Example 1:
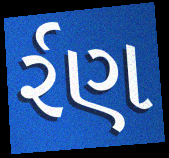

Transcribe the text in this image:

ર્રણ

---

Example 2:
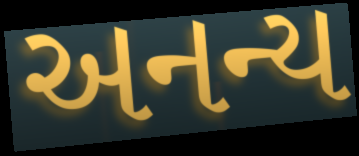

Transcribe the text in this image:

અનન્ય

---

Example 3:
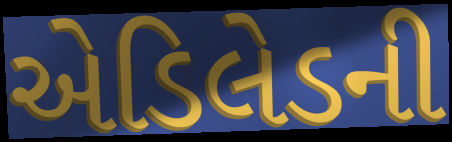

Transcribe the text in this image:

એડિલેડની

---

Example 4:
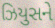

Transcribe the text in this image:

ઝિયુસને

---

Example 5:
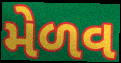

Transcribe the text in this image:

મેળવ